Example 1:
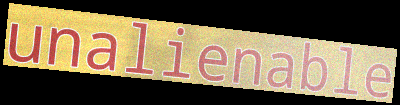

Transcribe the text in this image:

unalienable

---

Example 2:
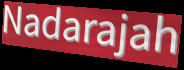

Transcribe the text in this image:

Nadarajah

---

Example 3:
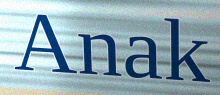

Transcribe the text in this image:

Anak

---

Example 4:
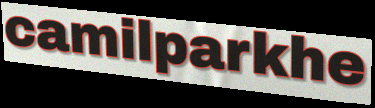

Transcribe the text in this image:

camilparkhe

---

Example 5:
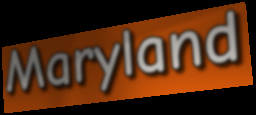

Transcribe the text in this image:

Maryland